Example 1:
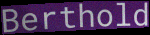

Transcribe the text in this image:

Berthold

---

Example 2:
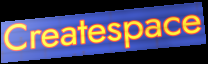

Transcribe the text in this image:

Createspace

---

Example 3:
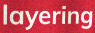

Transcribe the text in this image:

layering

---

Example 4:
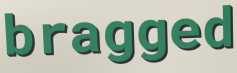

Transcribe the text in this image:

bragged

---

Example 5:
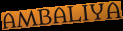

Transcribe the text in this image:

AMBALIYA